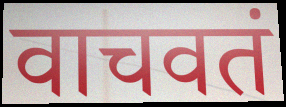
वाचवतं